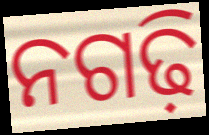
ନଗଢ଼ି